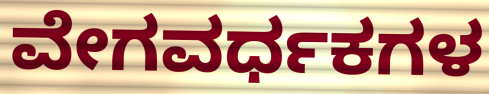
ವೇಗವರ್ಧಕಗಳ